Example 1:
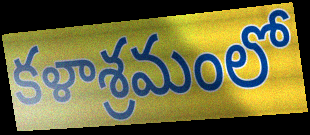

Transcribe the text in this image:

కళాశ్రమంలో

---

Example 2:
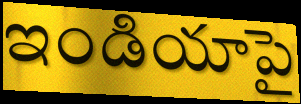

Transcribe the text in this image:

ఇండియాపై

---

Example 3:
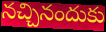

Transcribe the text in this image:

నచ్చినందుకు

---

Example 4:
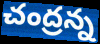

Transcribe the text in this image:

చంద్రన్న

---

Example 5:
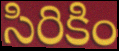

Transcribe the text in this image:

సిరికిం